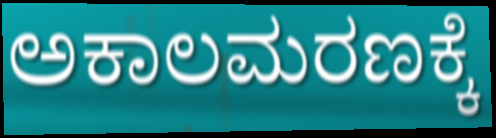
ಅಕಾಲಮರಣಕ್ಕೆ